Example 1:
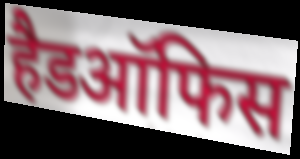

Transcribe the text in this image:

हैडऑफिस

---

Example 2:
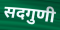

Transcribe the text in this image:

सदगुणी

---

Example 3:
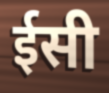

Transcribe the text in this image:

ईसी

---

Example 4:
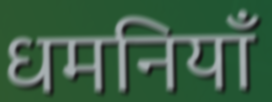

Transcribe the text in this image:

धमनियाँ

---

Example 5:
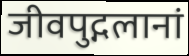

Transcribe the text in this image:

जीवपुद्गलानां